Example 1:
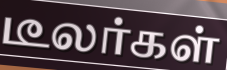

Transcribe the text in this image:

டீலர்கள்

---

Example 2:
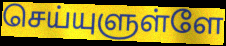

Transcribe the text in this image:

செய்யுளுள்ளே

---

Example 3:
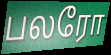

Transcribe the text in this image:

பலரோ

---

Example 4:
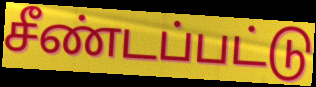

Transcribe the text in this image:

சீண்டப்பட்டு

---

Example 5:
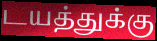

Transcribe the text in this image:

டயத்துக்கு